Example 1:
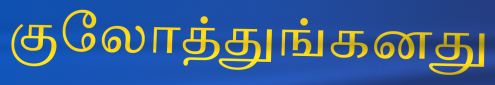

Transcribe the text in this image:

குலோத்துங்கனது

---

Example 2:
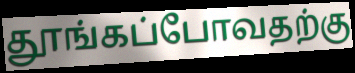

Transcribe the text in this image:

தூங்கப்போவதற்கு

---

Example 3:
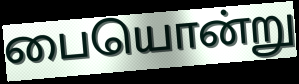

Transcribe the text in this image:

பையொன்று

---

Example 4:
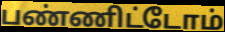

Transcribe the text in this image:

பண்ணிட்டோம்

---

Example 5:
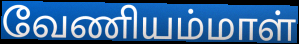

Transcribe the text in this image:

வேணியம்மாள்